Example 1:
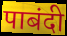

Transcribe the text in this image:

पाबंदी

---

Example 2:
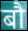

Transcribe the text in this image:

बौ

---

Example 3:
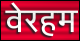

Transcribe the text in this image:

वेरहम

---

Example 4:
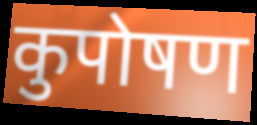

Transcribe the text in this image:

कुपोषण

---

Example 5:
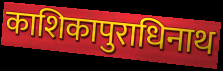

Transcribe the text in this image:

काशिकापुराधिनाथ